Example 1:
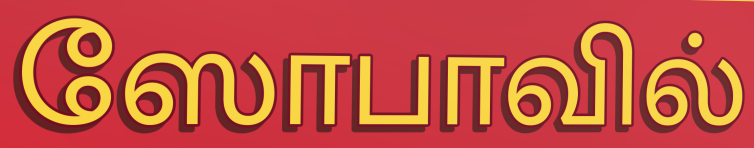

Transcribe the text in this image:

ஸோபாவில்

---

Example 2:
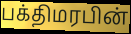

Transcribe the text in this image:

பக்திமரபின்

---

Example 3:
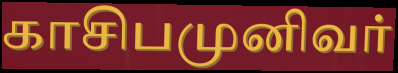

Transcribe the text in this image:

காசிபமுனிவர்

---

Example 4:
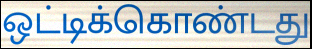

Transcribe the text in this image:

ஒட்டிக்கொண்டது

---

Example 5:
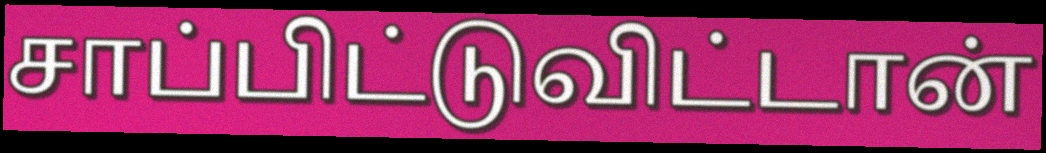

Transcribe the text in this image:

சாப்பிட்டுவிட்டான்